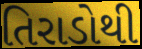
તિરાડોથી